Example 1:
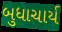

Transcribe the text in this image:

બુધાચાર્ય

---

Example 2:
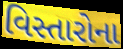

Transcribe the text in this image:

વિસ્તારોના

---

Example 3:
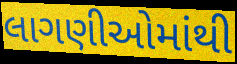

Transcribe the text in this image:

લાગણીઓમાંથી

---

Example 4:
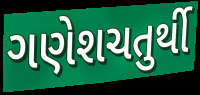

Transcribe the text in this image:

ગણેશચતુર્થી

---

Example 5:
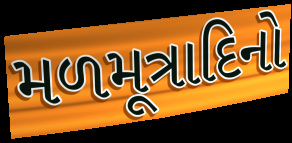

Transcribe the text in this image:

મળમૂત્રાદિનો